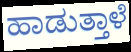
ಹಾಡುತ್ತಾಳೆ